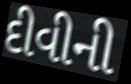
દીવીની